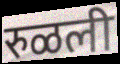
रुळली